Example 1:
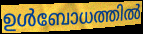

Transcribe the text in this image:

ഉൾബോധത്തിൽ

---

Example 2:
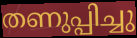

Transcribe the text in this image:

തണുപ്പിച്ചു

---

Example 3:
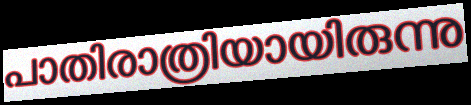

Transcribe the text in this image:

പാതിരാത്രിയായിരുന്നു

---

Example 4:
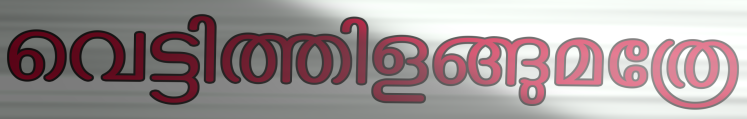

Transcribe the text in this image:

വെട്ടിത്തിളങ്ങുമത്രേ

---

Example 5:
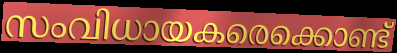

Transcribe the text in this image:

സംവിധായകരെക്കൊണ്ട്